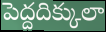
పెద్దదిక్కులా